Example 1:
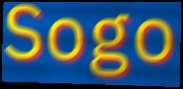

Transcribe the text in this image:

Sogo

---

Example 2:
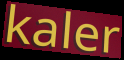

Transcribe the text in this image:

kaler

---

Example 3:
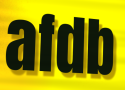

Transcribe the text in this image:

afdb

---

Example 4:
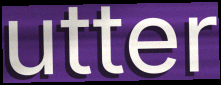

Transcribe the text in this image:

utter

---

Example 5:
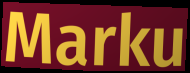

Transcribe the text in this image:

Marku